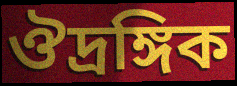
ঔদ্রঙ্গিক